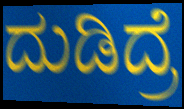
ದುಡಿದ್ರೆ